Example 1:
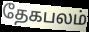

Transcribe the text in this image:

தேகபலம்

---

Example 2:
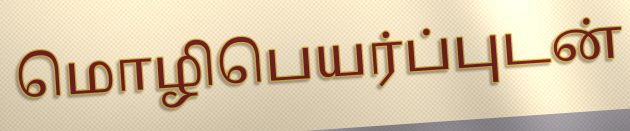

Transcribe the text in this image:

மொழிபெயர்ப்புடன்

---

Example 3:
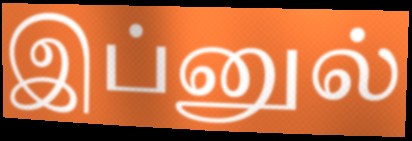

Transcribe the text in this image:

இப்னுல்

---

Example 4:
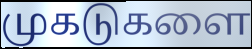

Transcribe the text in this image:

முகடுகளை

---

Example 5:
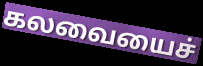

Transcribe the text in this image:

கலவையைச்